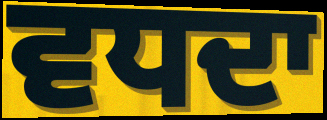
ਵਧਦਾ